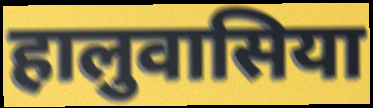
हालुवासिया